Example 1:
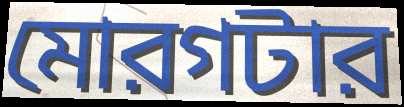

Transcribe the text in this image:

মোরগটার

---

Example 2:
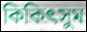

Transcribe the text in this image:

কিকিৎসুম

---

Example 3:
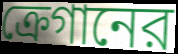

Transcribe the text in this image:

ক্রেগানের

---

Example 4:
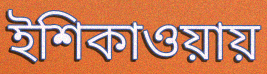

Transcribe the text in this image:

ইশিকাওয়ায়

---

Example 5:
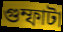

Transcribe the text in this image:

গুম্ফাটা